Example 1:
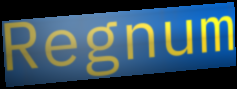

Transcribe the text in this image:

Regnum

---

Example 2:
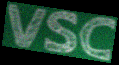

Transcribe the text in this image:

VSC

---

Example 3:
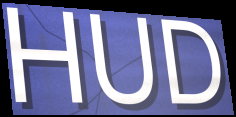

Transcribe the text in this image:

HUD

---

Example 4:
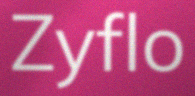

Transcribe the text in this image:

Zyflo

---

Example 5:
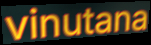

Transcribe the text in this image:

vinutana